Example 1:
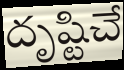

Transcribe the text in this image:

దృష్టిచే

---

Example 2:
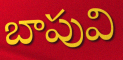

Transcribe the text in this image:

బాపువి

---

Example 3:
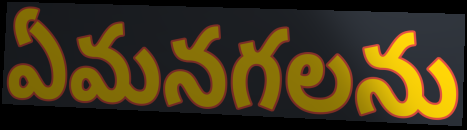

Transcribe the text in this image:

ఏమనగలను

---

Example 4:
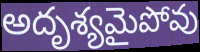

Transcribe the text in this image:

అదృశ్యమైపోవు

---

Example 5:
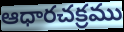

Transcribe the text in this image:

ఆధారచక్రము